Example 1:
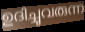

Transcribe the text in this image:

ഉദിച്ചുവരുന്ന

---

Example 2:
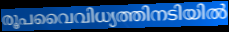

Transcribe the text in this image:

രൂപവൈവിധ്യത്തിനടിയിൽ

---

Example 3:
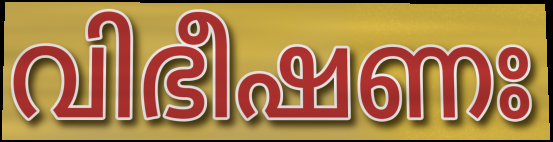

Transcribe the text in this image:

വിഭീഷണഃ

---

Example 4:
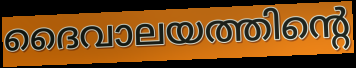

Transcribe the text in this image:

ദൈവാലയത്തിന്റെ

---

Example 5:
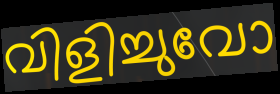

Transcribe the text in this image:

വിളിച്ചുവോ